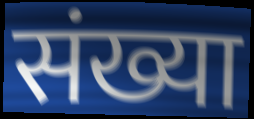
संख्या